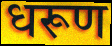
धरूण